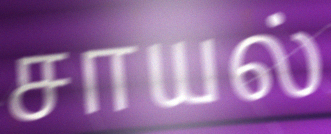
சாயல்